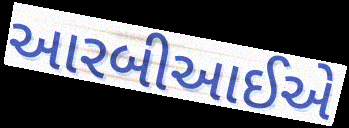
આરબીઆઈએ